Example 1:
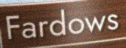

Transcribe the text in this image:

Fardows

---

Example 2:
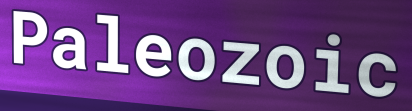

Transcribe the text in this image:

Paleozoic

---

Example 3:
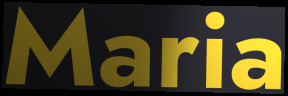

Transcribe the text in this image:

Maria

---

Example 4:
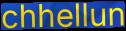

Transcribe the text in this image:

chhellun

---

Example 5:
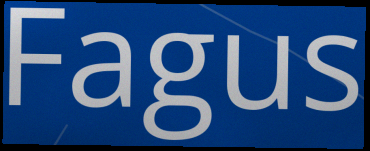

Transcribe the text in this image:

Fagus